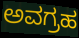
ಅವಗ್ರಹ